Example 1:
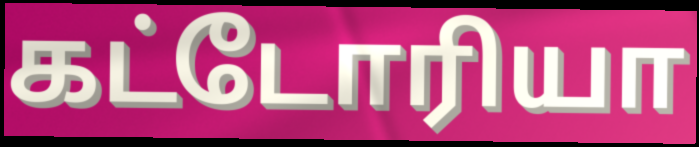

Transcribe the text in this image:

கட்டோரியா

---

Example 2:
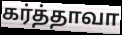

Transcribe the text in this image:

கர்த்தாவா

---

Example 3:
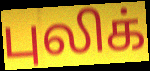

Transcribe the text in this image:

புலிக்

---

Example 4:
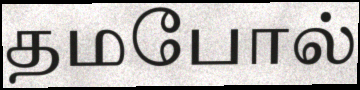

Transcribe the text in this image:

தமபோல்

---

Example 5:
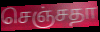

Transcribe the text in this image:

செஞ்சதா